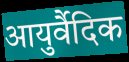
आयुर्वैदिक